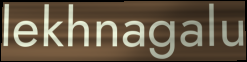
lekhnagalu